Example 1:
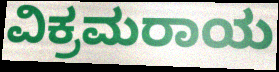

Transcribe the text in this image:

ವಿಕ್ರಮರಾಯ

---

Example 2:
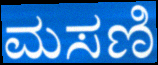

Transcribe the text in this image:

ಮಸಣಿ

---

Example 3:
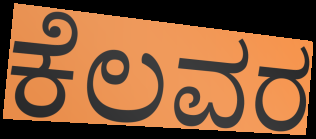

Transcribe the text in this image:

ಕೆಲವರ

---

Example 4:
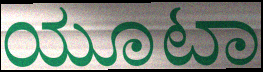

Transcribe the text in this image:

ಯೂಟಾ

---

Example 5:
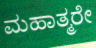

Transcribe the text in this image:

ಮಹಾತ್ಮರೇ